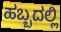
ಹಬ್ಬದಲ್ಲಿ